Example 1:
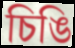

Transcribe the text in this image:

চিঙি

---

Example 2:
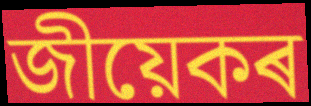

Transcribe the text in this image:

জীয়েকৰ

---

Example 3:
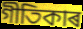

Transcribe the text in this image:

গীতিকাৰ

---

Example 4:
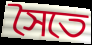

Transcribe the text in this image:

সৈতে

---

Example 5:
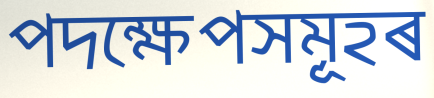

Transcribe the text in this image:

পদক্ষেপসমূহৰ